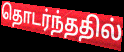
தொடர்ந்ததில்